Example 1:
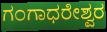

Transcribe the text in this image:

ಗಂಗಾಧರೇಶ್ವರ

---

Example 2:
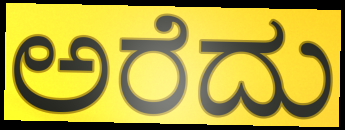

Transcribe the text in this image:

ಅರೆದು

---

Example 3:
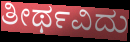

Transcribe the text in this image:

ತೀರ್ಥವಿದು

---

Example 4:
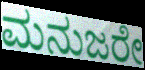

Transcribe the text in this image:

ಮನುಜರೇ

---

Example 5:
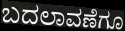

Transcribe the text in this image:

ಬದಲಾವಣೆಗೂ